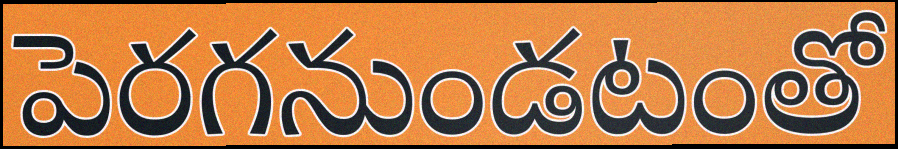
పెరగనుండటంతో